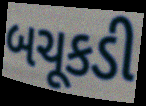
બચૂકડી